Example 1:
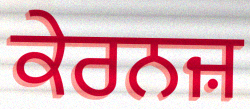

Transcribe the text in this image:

ਕੇਰਨਜ਼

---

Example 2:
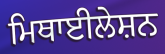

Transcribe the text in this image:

ਮਿਥਾਈਲੇਸ਼ਨ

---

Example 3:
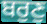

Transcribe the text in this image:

ਬਰੁਣੁ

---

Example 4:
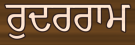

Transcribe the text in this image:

ਰੁਦਰਰਾਮ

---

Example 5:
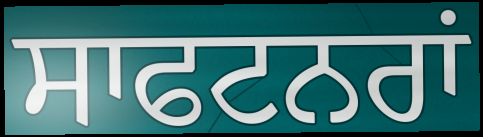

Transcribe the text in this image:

ਸਾਫਟਨਰਾਂ